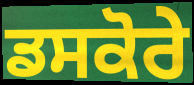
ਡਸਕੋਰੇ